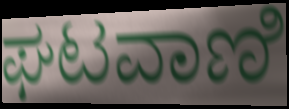
ಘಟವಾಣಿ